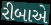
રીબાએ